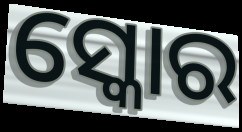
ସ୍କୋର